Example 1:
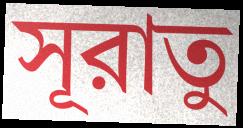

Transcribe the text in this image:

সূরাতু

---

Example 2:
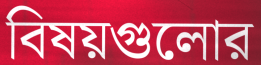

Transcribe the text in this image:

বিষয়গুলোর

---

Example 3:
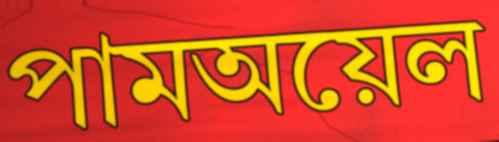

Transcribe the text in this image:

পামঅয়েল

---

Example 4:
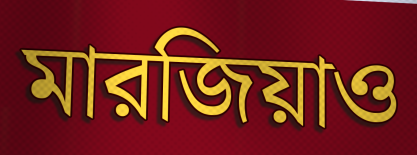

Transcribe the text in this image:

মারজিয়াও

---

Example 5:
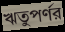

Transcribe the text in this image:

ঋতুপর্ণর